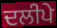
ਦਲੀਪੇ